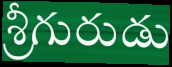
శ్రీగురుడు